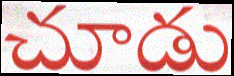
చూడు